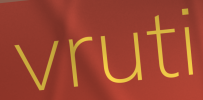
vruti